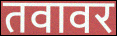
तवावर